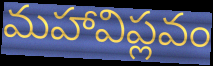
మహావిప్లవం